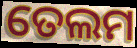
ତେଲମ